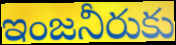
ఇంజనీరుకు